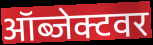
ऑब्जेक्टवर